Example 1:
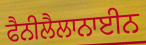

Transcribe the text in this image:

ਫੈਨੀਲੈਲਾਨਾਈਨ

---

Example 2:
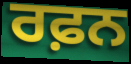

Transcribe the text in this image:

ਰਫ਼ਨ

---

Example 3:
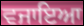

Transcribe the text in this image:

ਵਜਾਇਆ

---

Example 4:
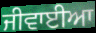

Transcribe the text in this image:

ਜੀਵਾਈਆ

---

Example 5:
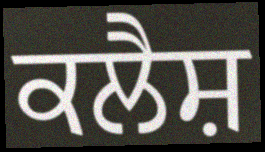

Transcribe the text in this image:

ਕਲੈਸ਼